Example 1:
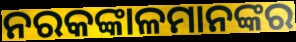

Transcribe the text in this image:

ନରକଙ୍କାଳମାନଙ୍କର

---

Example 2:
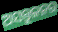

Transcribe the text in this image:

ଅସନ୍ତୁଳନର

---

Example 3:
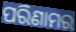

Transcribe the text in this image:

ପରିଣାମର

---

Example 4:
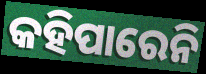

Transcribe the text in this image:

କହିପାରେନି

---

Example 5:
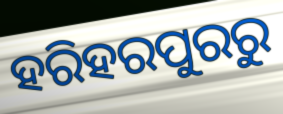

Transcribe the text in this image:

ହରିହରପୁରରୁ